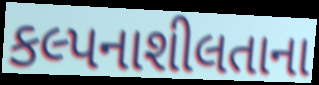
કલ્પનાશીલતાના